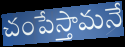
చంపేస్తామనే